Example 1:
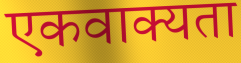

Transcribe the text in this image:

एकवाक्यता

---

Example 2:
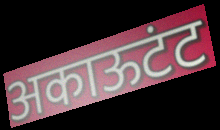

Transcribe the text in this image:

अकाऊटंट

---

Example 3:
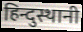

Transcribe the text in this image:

हिन्दुस्थानी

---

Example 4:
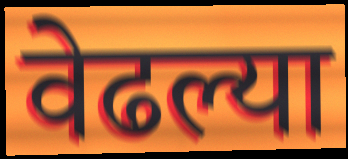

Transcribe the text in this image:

वेढल्या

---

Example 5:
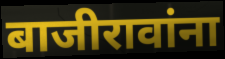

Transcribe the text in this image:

बाजीरावांना